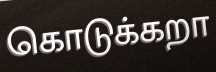
கொடுக்கறா